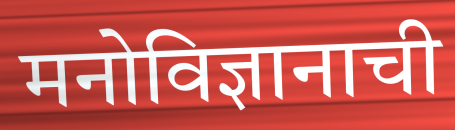
मनोविज्ञानाची